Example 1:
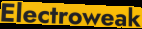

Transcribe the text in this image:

Electroweak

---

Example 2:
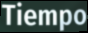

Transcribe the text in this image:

Tiempo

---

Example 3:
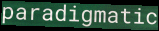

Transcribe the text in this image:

paradigmatic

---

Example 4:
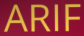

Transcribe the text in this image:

ARIF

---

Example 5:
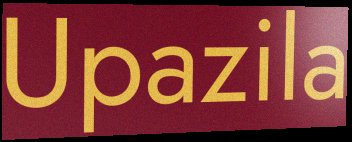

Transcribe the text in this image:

Upazila